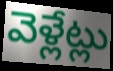
వెళ్లేట్లు